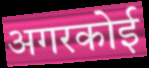
अगरकोई